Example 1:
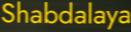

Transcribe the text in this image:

Shabdalaya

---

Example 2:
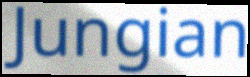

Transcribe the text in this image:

Jungian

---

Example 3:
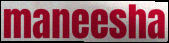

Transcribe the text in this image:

maneesha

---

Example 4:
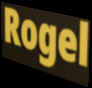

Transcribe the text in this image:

Rogel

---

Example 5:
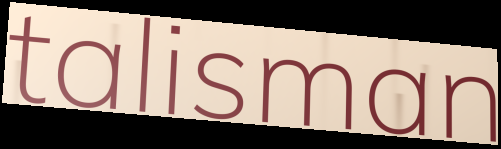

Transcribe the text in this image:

talisman